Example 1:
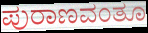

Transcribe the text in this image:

ಪುರಾಣವಂತೂ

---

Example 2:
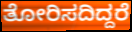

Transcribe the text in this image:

ತೋರಿಸದಿದ್ದರೆ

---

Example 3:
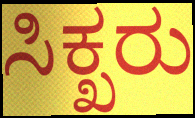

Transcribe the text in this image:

ಸಿಕ್ಖರು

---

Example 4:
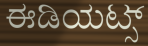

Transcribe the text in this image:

ಈಡಿಯಟ್ಸ್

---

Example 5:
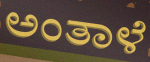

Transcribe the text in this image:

ಅಂತಾಳೆ